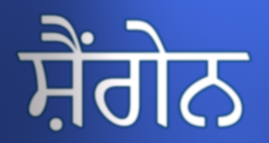
ਸ਼ੈਂਗੇਨ